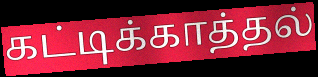
கட்டிக்காத்தல்